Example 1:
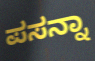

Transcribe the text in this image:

ಪಸನ್ನಾ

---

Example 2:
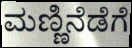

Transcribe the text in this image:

ಮಣ್ಣಿನೆಡೆಗೆ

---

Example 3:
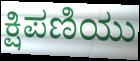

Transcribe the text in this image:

ಕ್ಷಿಪಣಿಯು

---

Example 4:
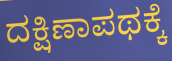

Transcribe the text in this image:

ದಕ್ಷಿಣಾಪಥಕ್ಕೆ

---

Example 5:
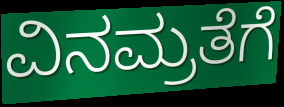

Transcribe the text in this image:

ವಿನಮ್ರತೆಗೆ